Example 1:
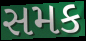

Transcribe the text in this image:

સમક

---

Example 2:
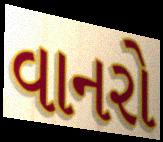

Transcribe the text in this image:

વાનરો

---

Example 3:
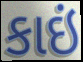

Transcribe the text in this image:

કાઇં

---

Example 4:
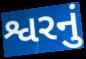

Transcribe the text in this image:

શ્વરનું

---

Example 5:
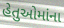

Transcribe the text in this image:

હેતુઓમાંના